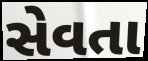
સેવતા